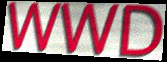
WWD